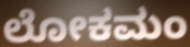
ಲೋಕಮಂ